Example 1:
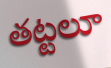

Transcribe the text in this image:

తట్టలూ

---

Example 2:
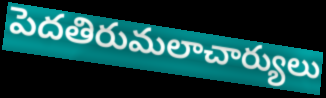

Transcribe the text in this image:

పెదతిరుమలాచార్యులు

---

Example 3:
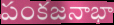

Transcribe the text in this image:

పంకజనాభా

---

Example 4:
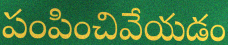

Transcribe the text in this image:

పంపించివేయడం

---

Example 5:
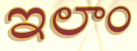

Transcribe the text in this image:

ఇలాం